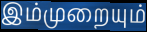
இம்முறையும்